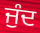
ਜੁੰਦ